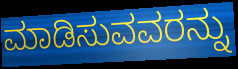
ಮಾಡಿಸುವವರನ್ನು